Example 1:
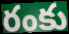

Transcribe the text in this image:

రంకు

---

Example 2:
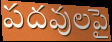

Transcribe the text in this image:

పదవులపై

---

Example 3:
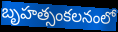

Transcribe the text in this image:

బృహత్సంకలనంలో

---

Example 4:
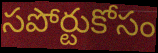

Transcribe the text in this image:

సపోర్టుకోసం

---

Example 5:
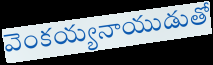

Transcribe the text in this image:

వెంకయ్యనాయుడుతో